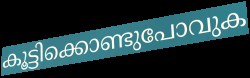
കൂട്ടിക്കൊണ്ടുപോവുക